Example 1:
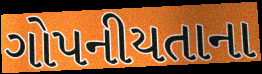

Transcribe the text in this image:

ગોપનીયતાના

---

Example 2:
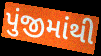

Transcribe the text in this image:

પુંજીમાંથી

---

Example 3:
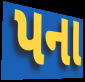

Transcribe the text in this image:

પના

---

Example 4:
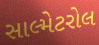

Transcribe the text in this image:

સાલ્મેટરોલ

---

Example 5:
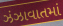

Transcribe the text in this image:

ઝંઝાવાતમાં